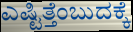
ಎಷ್ಟಿತ್ತೆಂಬುದಕ್ಕೆ